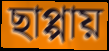
ছাপ্পায়